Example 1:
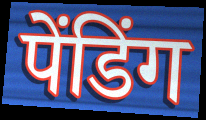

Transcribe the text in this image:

पेंडिंग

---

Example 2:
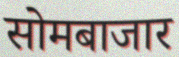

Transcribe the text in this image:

सोमबाजार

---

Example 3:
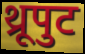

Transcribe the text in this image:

थ्रूपुट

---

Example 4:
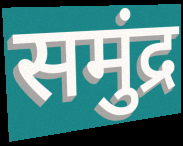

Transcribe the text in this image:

समुंद्र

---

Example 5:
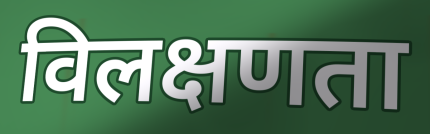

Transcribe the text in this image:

विलक्षणता